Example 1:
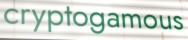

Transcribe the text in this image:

cryptogamous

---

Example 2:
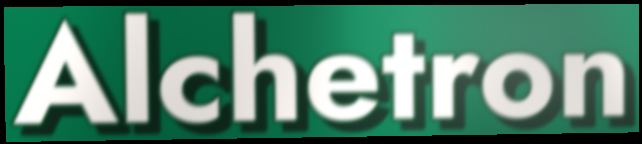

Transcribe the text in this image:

Alchetron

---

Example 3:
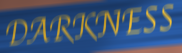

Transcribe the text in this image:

DARKNESS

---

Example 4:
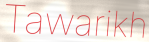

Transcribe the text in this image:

Tawarikh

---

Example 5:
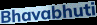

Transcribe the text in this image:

Bhavabhuti